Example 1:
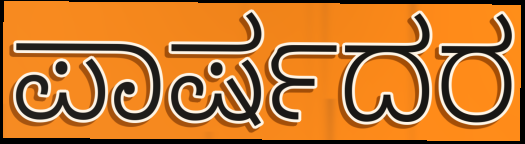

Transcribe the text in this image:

ಪಾರ್ಷದರ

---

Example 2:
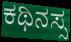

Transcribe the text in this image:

ಕಥಿನಸ್ಸ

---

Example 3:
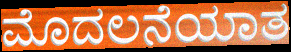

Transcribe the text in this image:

ಮೊದಲನೆಯಾತ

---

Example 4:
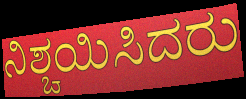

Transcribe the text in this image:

ನಿಶ್ಚಯಿಸಿದರು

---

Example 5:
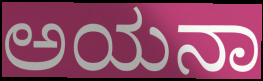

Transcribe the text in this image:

ಅಯನಾ